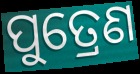
ପୁତ୍ରେଣ